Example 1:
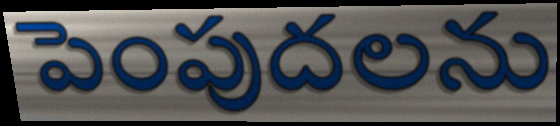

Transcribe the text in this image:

పెంపుదలను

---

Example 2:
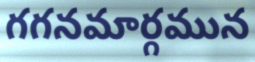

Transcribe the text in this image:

గగనమార్గమున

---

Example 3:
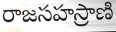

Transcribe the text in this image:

రాజసహస్రాణి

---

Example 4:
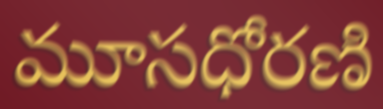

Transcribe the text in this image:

మూసధోరణి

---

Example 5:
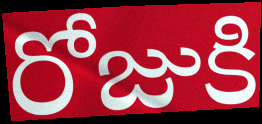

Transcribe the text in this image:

రోజుకి